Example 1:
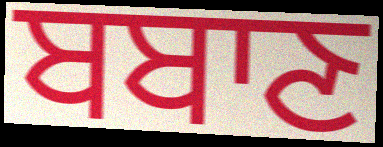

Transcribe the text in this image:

ਬਬਾਣ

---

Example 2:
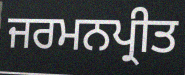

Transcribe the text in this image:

ਜਰਮਨਪ੍ਰੀਤ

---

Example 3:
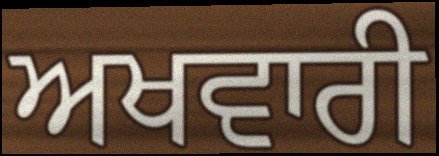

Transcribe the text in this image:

ਅਖਵਾਰੀ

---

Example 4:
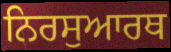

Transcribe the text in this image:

ਨਿਰਸੁਆਰਥ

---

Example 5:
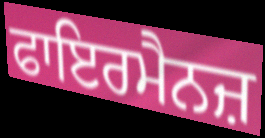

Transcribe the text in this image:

ਫਾਇਰਮੈਨਜ਼